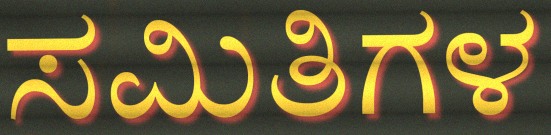
ಸಮಿತಿಗಳ